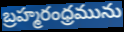
బ్రహ్మరంధ్రమును